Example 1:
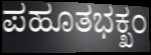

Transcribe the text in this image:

ಪಹೂತಭಕ್ಖಂ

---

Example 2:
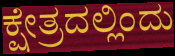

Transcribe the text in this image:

ಕ್ಷೇತ್ರದಲ್ಲಿಂದು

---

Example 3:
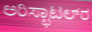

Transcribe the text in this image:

ಅರಿಸ್ಟಾಟಲ್‍ರ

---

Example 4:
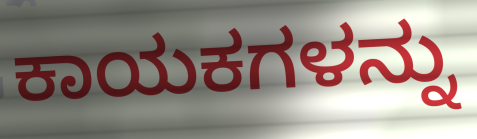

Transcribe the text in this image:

ಕಾಯಕಗಳನ್ನು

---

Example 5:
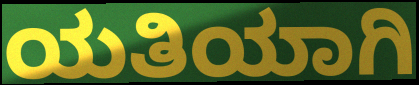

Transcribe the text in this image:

ಯತಿಯಾಗಿ